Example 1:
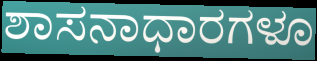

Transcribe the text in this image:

ಶಾಸನಾಧಾರಗಳೂ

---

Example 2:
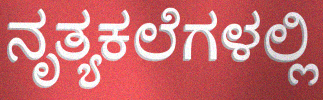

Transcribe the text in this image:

ನೃತ್ಯಕಲೆಗಳಲ್ಲಿ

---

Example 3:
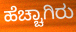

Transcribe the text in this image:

ಹೆಚ್ಚಾಗಿರು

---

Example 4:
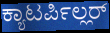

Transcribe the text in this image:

ಕ್ಯಾಟರ್ಪಿಲ್ಲರ್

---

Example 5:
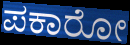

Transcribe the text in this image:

ಪಕಾರೋ